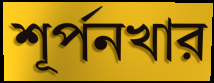
শূর্পনখার